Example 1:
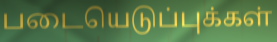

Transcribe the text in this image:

படையெடுப்புக்கள்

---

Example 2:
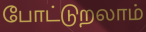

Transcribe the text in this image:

போட்டுறலாம்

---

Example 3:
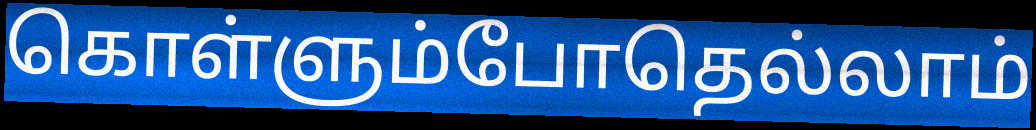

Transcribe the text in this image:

கொள்ளும்போதெல்லாம்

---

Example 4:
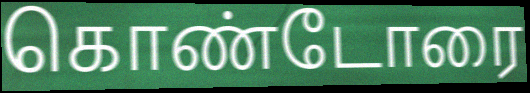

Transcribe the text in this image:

கொண்டோரை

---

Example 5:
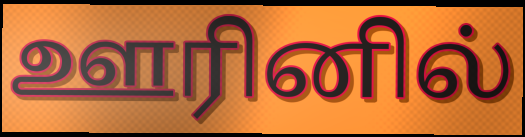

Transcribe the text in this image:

ஊரினில்